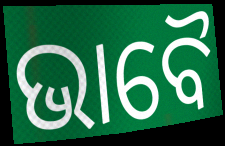
ଭାବୈ